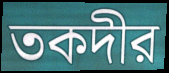
তকদীর